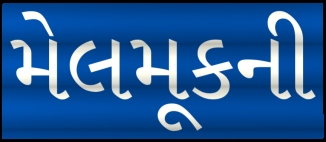
મેલમૂકની